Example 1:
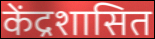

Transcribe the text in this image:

केंद्रशासित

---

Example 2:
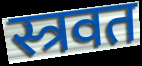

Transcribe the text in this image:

स्त्रवत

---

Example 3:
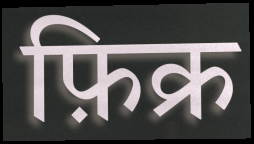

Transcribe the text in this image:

फ़िक्र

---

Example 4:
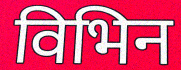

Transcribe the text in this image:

विभिन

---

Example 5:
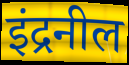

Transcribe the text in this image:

इंद्रनील